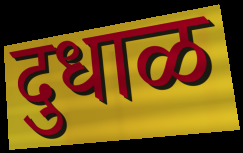
दुधाळ